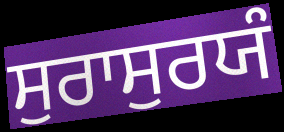
ਸੁਰਾਸੁਰਯੰ